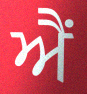
ਐੰ